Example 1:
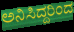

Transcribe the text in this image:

ಅನಿಸಿದ್ದರಿಂದ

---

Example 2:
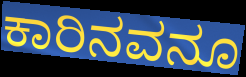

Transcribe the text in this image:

ಕಾರಿನವನೂ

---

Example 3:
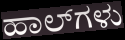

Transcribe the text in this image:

ಹಾಲ್‌ಗಳು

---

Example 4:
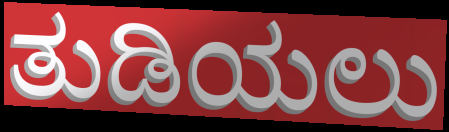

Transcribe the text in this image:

ತುಡಿಯಲು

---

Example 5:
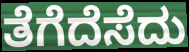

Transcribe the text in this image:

ತೆಗೆದೆಸೆದು